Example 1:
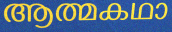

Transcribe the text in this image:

ആത്മകഥാ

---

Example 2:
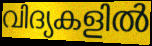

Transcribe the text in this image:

വിദ്യകളിൽ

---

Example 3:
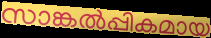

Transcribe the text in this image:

സാങ്കൽപ്പികമായ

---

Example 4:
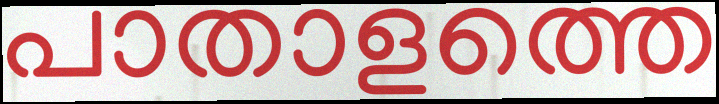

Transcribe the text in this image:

പാതാളത്തെ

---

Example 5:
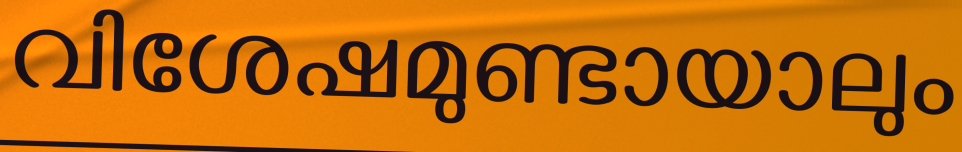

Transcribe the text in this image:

വിശേഷമുണ്ടായാലും